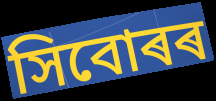
সিবোৰৰ